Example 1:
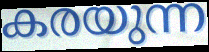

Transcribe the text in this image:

കരയുന്ന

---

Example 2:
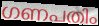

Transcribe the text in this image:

ഗണപതിം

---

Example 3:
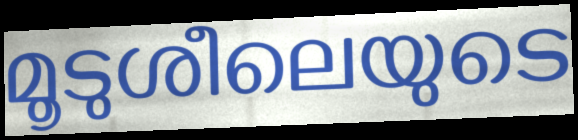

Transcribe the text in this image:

മൂടുശീലെയുടെ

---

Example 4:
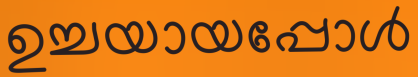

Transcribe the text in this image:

ഉച്ചയായപ്പോൾ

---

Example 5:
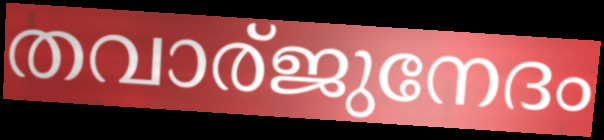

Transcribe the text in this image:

തവാര്ജുനേദം